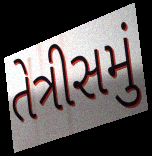
તેત્રીસમું